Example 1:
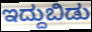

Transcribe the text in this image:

ಇದ್ದುಬಿಡು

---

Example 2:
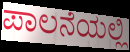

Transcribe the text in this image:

ಪಾಲನೆಯಲ್ಲಿ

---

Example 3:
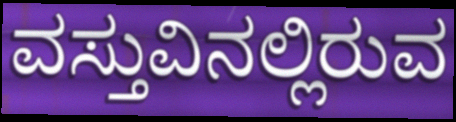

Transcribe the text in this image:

ವಸ್ತುವಿನಲ್ಲಿರುವ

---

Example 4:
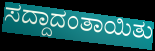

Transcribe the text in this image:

ಸದ್ದಾದಂತಾಯಿತು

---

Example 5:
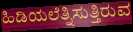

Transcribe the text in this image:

ಹಿಡಿಯಲೆತ್ನಿಸುತ್ತಿರುವ